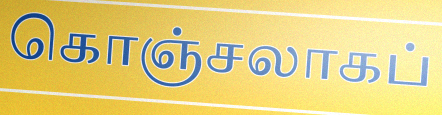
கொஞ்சலாகப்